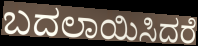
ಬದಲಾಯಿಸಿದರೆ